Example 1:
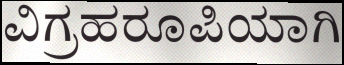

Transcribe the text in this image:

ವಿಗ್ರಹರೂಪಿಯಾಗಿ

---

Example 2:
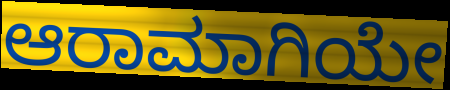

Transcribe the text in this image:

ಆರಾಮಾಗಿಯೇ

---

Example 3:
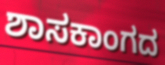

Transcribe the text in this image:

ಶಾಸಕಾಂಗದ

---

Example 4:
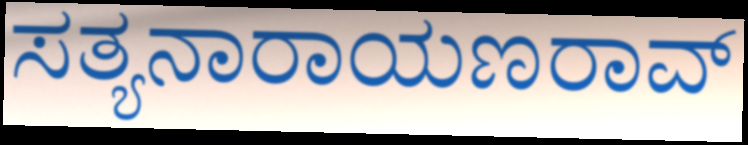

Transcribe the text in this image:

ಸತ್ಯನಾರಾಯಣರಾವ್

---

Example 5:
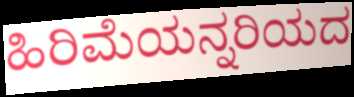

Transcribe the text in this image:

ಹಿರಿಮೆಯನ್ನರಿಯದ